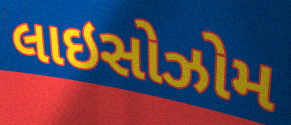
લાઇસોઝોમ